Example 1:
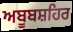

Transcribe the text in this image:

ਅਬੂਬਸ਼ਹਿਰ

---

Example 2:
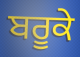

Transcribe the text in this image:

ਬਰੂਕੇ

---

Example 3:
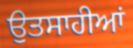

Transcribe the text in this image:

ਉਤਸਾਹੀਆਂ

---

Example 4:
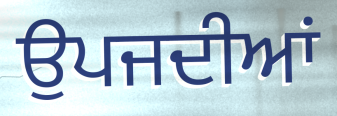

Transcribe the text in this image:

ਉਪਜਦੀਆਂ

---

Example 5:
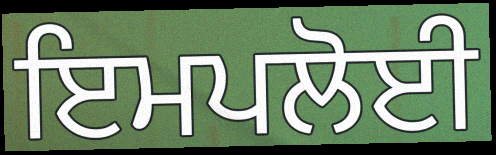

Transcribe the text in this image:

ਇਮਪਲੋਈ